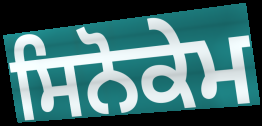
ਸਿਨੋਕੇਮ